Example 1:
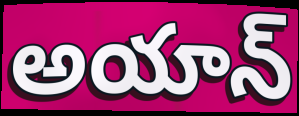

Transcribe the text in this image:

అయాన్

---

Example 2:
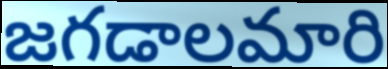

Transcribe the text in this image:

జగడాలమారి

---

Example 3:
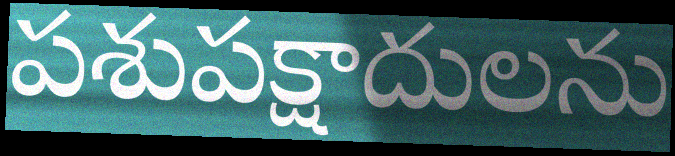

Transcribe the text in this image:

పశుపక్షాదులను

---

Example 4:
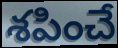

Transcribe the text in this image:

శపించే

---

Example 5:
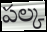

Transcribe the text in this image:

పల్క